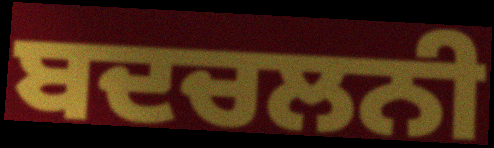
ਬਦਚਲਨੀ